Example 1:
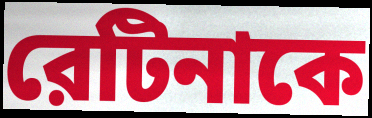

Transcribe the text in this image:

রেটিনাকে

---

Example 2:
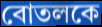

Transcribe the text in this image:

বোতলকে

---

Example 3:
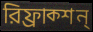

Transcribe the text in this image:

রিফ্রাক্শন্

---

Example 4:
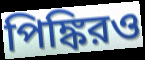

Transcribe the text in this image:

পিঙ্কিরও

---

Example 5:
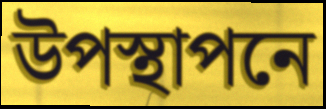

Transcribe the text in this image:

উপস্থাপনে